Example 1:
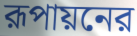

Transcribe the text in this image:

রূপায়নের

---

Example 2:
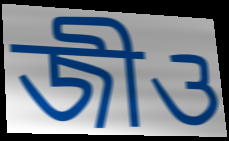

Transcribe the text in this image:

জীও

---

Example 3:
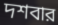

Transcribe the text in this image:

দশবার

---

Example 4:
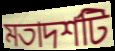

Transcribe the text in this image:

মতাদর্শটি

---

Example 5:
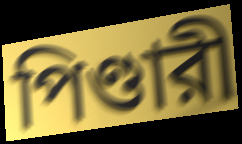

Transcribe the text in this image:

পিণ্ডারী